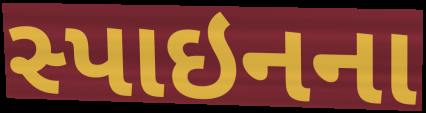
સ્પાઇનના